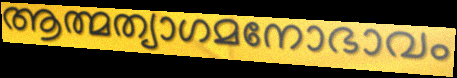
ആത്മത്യാഗമനോഭാവം